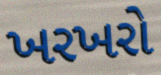
ખરખરો